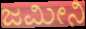
ಜಮೀನಿ